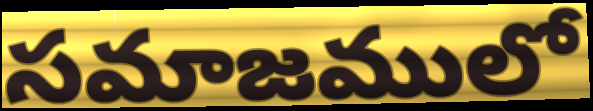
సమాజములో